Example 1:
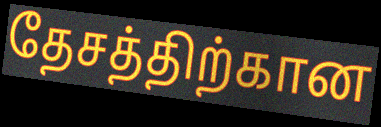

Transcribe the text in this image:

தேசத்திற்கான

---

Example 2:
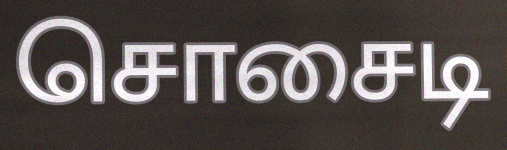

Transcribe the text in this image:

சொசைடி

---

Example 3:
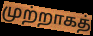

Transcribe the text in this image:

முற்றாகத்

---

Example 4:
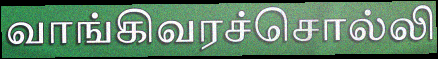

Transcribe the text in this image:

வாங்கிவரச்சொல்லி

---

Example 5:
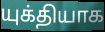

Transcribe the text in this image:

யுக்தியாக